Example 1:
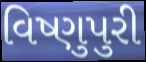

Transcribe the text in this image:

વિષ્ણુપુરી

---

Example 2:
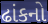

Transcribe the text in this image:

ઢાંકનો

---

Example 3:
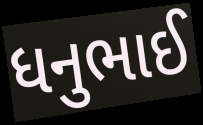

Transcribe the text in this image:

ધનુભાઈ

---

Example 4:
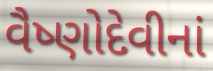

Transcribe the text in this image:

વૈષ્ણોદેવીનાં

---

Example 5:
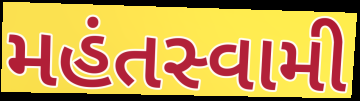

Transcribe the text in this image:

મહંતસ્વામી